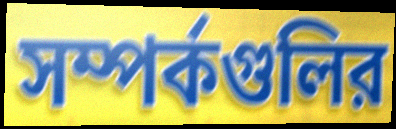
সম্পর্কগুলির